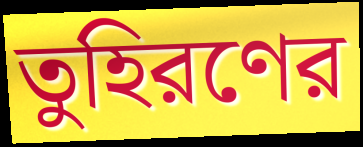
তুহিরণের